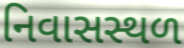
નિવાસસ્થળ